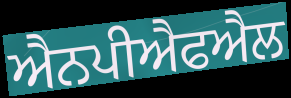
ਐਨਪੀਐਫਐਲ